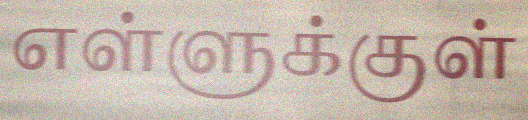
எள்ளுக்குள்